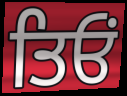
ਤਿਓਂ